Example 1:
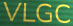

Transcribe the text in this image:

VLGC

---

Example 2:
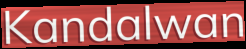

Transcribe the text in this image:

Kandalwan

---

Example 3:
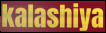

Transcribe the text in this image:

kalashiya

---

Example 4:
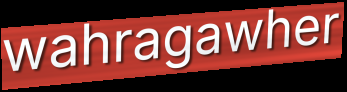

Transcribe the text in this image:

wahragawher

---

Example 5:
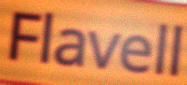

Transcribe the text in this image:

Flavell